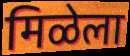
मिळेला